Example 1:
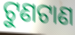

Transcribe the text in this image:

ଟୁଣଟାଣ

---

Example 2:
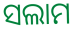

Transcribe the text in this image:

ସଲାମ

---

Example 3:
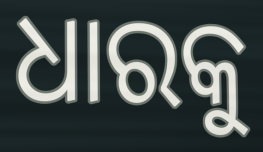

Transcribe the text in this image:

ଧାରକୁ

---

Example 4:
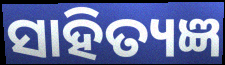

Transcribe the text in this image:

ସାହିତ୍ୟଜ୍ଞ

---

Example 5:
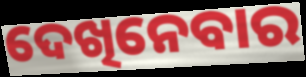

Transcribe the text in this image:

ଦେଖିନେବାର